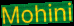
Mohini